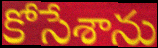
కోసేశాను